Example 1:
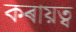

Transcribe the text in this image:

কৰায়ত্ব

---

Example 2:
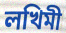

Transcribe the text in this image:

লখিমী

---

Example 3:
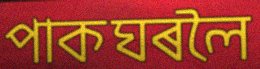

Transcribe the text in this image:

পাকঘৰলৈ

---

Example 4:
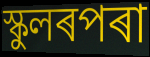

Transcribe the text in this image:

স্কুলৰপৰা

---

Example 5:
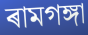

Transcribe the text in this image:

ৰামগঙ্গা